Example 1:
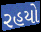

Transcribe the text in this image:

રહયો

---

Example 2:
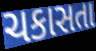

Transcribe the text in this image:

ચકાસતા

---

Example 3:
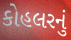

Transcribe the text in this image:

કોહલરનું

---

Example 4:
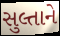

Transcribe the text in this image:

સુલ્તાને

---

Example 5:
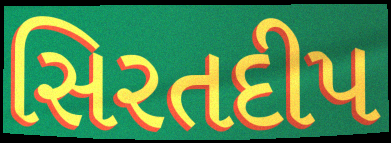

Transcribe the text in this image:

સિરતદીપ